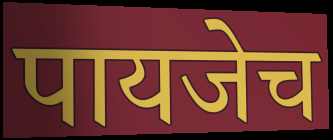
पायजेच